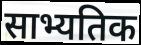
साभ्यतिक